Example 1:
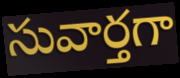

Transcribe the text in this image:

సువార్తగా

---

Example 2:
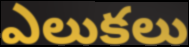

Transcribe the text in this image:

ఎలుకలు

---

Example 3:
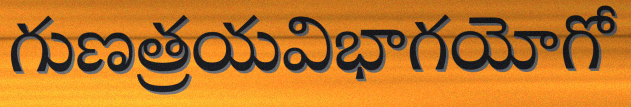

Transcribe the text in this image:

గుణత్రయవిభాగయోగో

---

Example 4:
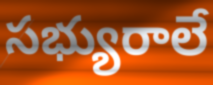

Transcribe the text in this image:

సభ్యురాలే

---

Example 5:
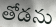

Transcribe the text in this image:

తోడను